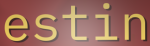
estin